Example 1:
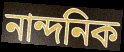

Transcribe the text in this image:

নান্দনিক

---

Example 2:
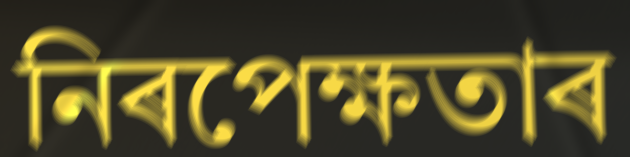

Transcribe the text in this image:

নিৰপেক্ষতাৰ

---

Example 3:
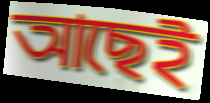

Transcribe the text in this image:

আছেই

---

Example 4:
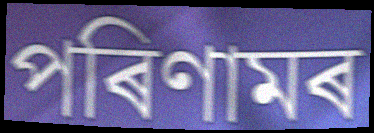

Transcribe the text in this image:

পৰিণামৰ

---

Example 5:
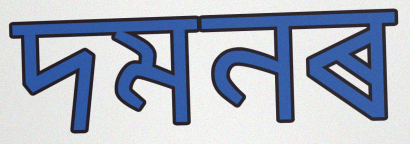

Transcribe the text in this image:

দমনৰ